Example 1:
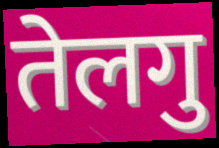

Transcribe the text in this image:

तेलगु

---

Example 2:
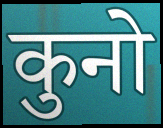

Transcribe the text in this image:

कुनो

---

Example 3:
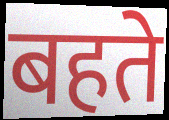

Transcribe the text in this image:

बहते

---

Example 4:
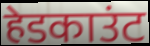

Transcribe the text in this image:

हेडकाउंट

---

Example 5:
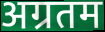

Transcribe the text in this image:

अग्रतम